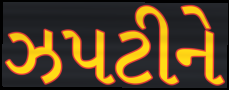
ઝપટીને